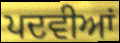
ਪਦਵੀਆਂ